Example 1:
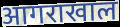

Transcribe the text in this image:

आगराखाल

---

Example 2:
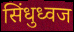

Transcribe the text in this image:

सिंधुध्वज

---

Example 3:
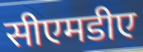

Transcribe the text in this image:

सीएमडीए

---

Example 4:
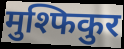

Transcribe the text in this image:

मुश्फिकुर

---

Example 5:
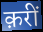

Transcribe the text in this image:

क़रीं